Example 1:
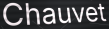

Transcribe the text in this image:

Chauvet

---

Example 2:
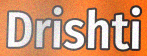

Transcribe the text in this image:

Drishti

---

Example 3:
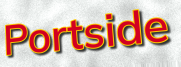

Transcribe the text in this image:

Portside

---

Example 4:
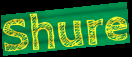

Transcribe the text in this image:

Shure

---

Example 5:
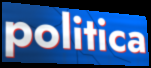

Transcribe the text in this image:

politica